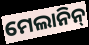
ମେଲାନିନ୍